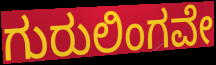
ಗುರುಲಿಂಗವೇ